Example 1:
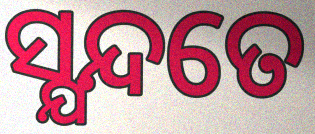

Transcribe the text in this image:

ସ୍ଯନ୍ଦତେ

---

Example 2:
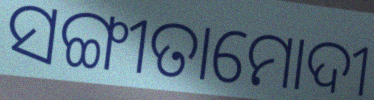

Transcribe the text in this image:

ସଙ୍ଗୀତାମୋଦୀ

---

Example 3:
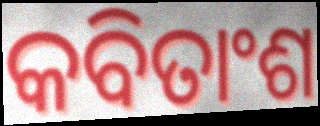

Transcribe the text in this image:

କବିତାଂଶ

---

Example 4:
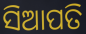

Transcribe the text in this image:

ସିଆପତି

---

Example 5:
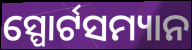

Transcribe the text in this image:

ସ୍ପୋର୍ଟସମ୍ୟାନ